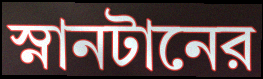
স্নানটানের